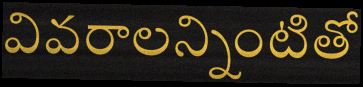
వివరాలన్నింటితో